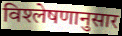
विश्लेषणानुसार